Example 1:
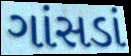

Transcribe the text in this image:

ગાંસડાં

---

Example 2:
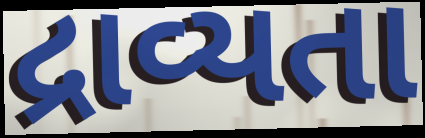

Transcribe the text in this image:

દ્રાવ્યતા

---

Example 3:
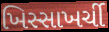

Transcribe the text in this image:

ખિસ્સાખર્ચી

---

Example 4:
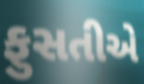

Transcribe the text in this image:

ફુસતીએ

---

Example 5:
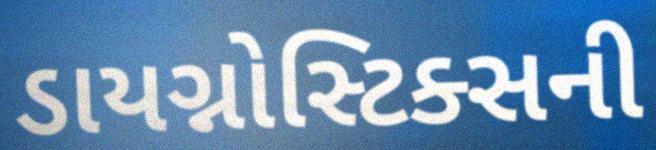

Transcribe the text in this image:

ડાયગ્નોસ્ટિક્સની